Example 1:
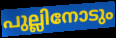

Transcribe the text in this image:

പുല്ലിനോടും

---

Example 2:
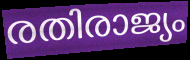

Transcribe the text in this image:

രതിരാജ്യം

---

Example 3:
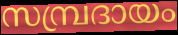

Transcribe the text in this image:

സമ്പ്രദായം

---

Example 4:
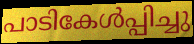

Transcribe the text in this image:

പാടികേൾപ്പിച്ചു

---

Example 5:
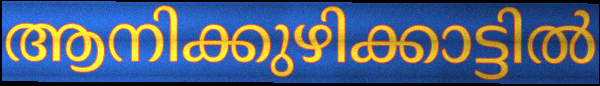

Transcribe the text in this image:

ആനിക്കുഴിക്കാട്ടിൽ